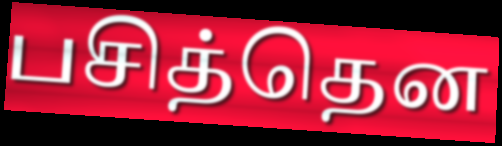
பசித்தென